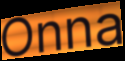
Onna